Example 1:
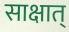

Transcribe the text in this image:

साक्षात्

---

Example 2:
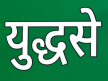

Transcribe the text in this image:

युद्धसे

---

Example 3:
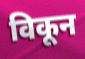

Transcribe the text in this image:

विकून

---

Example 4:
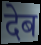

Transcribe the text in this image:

देब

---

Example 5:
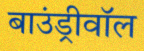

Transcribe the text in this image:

बाउंड्रीवॉल